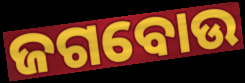
ଜଗବୋଉ